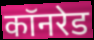
कॉनरेड